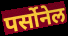
पर्सोनेल